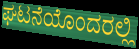
ಘಟನೆಯೊಂದರಲ್ಲಿ